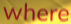
where